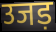
उजड़